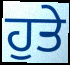
ਹੁਤੇ